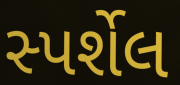
સ્પર્શેલ